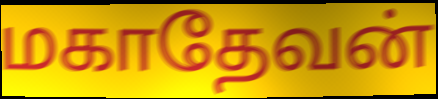
மகாதேவன்